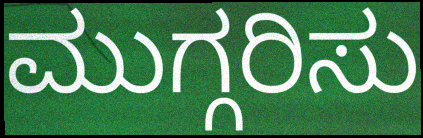
ಮುಗ್ಗರಿಸು